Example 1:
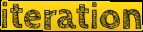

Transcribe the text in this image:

iteration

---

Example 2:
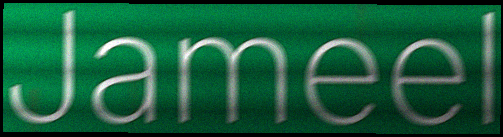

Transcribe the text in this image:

Jameel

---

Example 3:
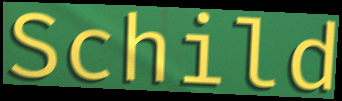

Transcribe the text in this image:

Schild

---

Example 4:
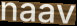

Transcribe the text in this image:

naav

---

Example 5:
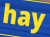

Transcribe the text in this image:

hay